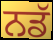
ਨਡੱ